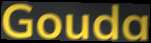
Gouda